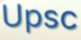
Upsc